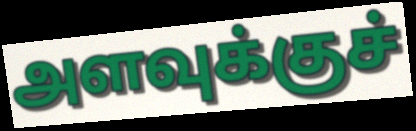
அளவுக்குச்